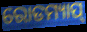
ରୋଡମ୍ୟାପ୍